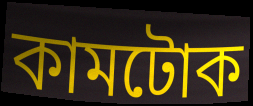
কামটোক